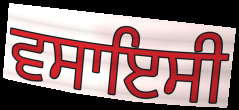
ਵਸਾਇਸੀ